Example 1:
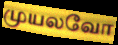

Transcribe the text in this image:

முயலவோ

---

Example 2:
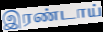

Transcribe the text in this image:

இரண்டாய்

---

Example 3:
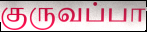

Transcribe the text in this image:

குருவப்பா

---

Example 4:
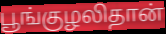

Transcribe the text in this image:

பூங்குழலிதான்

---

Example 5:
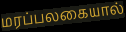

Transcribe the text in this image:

மரப்பலகையால்